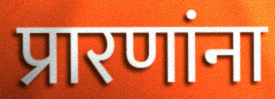
प्रारणांना